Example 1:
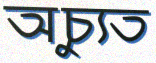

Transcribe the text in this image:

অচ্যুত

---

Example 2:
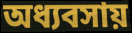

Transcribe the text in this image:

অধ্যবসায়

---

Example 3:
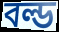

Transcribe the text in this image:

বল্ড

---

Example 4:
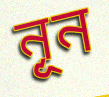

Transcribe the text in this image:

নূন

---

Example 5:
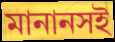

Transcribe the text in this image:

মানানসই